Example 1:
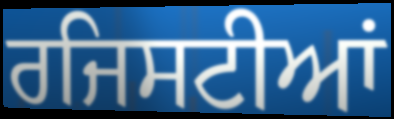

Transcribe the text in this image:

ਰਜਿਸਟੀਆਂ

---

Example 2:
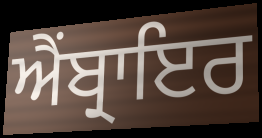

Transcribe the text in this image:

ਐਂਬ੍ਰਾਇਰ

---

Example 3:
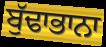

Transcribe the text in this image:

ਬੁੱਢਾਭਾਨਾ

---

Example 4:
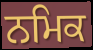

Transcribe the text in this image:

ਨਮਿਕ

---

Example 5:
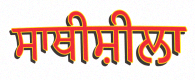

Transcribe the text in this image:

ਸਾਥੀਸ਼ੀਲਾ